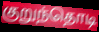
குறுந்தொடி